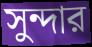
সুন্দার